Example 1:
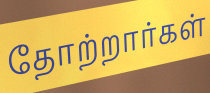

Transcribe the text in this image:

தோற்றார்கள்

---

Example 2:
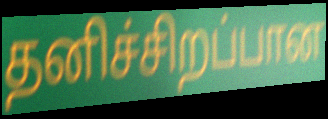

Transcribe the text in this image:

தனிச்சிறப்பான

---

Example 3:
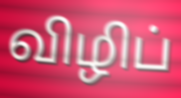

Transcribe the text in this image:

விழிப்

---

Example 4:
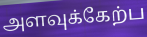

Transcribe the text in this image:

அளவுக்கேற்ப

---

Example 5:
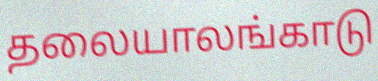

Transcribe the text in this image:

தலையாலங்காடு